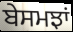
ਬੇਸਮਝਾਂ